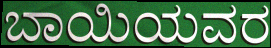
ಬಾಯಿಯವರ